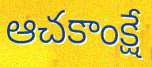
ఆచకాంక్షే